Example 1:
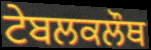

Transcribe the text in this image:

ਟੇਬਲਕਲੌਥ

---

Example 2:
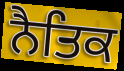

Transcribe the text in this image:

ਨੈਤਿਕ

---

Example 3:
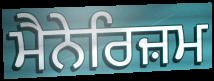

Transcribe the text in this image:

ਮੈਨੇਰਿਜ਼ਮ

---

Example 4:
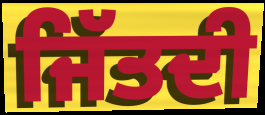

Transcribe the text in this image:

ਜਿੱਤਦੀ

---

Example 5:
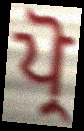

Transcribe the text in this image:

ਪ੍ਰੋ